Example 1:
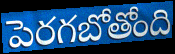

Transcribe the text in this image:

పెరగబోతోంది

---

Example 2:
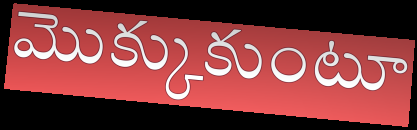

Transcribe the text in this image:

మొక్కుకుంటూ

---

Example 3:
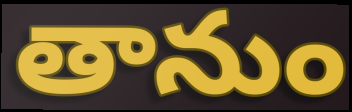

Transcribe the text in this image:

తానుం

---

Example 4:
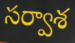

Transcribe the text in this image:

సర్వాశ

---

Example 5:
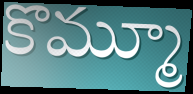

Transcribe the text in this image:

కొమ్మూ